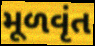
મૂળવૃંત